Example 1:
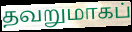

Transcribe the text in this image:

தவறுமாகப்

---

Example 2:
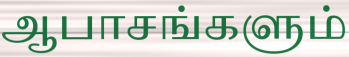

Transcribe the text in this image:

ஆபாசங்களும்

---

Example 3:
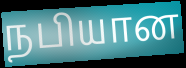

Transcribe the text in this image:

நபியான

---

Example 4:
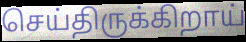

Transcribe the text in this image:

செய்திருக்கிறாய்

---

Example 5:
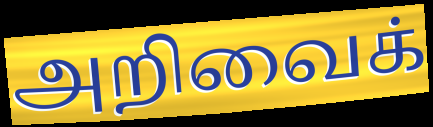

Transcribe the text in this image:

அறிவைக்